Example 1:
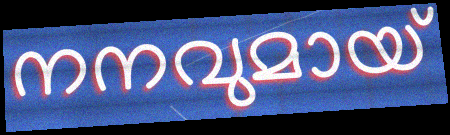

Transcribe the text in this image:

നനവുമായ്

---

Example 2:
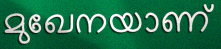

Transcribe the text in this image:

മുഖേനയാണ്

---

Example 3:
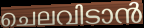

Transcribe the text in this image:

ചെലവിടാൻ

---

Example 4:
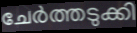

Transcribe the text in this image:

ചേർത്തടുക്കി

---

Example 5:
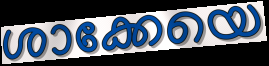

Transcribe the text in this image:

ശാക്കേയെ